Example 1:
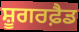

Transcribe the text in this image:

ਸ਼ੂਗਰਫ਼ੈਡ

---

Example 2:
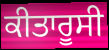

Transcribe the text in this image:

ਕੀਤਾਰੂਸੀ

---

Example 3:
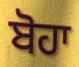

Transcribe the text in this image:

ਬੋਹਾ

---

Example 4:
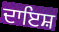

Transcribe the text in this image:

ਦਾਇਸ਼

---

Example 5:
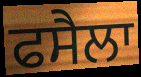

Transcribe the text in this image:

ਫਸੈਲਾ